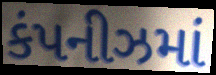
કંપનીઝમાં